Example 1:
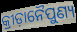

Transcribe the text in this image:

କ୍ରୀଡ଼ାନୈପୁଣ୍ୟ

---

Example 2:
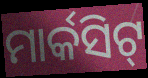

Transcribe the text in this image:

ମାର୍କସିଟ୍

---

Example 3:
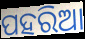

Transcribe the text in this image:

ପହରିଆ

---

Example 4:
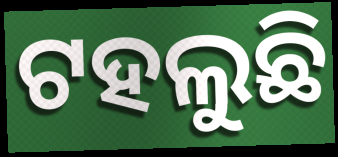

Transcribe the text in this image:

ଟହଲୁଛି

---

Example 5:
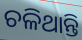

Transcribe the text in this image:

ଚଳିଥାନ୍ତି